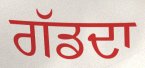
ਗੱਡਦਾ